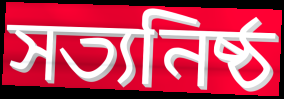
সত্যনিষ্ঠ